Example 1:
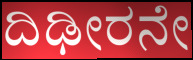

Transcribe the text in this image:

ದಿಢೀರನೇ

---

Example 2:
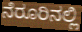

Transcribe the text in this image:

ನೆರೂರಿನಲ್ಲಿ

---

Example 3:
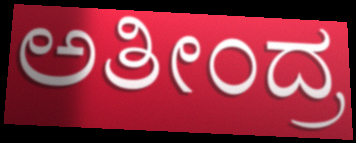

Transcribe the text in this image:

ಅತೀಂದ್ರ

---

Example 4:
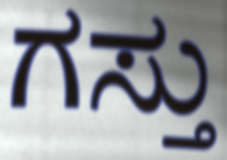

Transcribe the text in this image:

ಗಸ್ತು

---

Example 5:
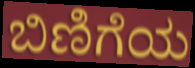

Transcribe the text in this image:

ಬಿಣಿಗೆಯ